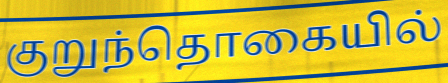
குறுந்தொகையில்